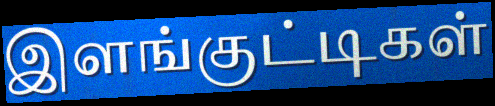
இளங்குட்டிகள்